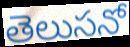
తెలుసనో